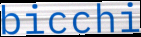
bicchi